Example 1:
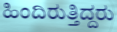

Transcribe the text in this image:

ಹಿಂದಿರುತ್ತಿದ್ದರು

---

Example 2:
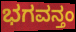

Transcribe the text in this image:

ಭಗವನ್ತಂ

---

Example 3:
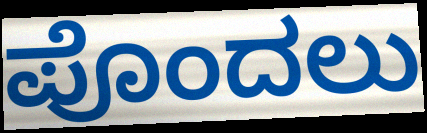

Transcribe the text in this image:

ಪೊಂದಲು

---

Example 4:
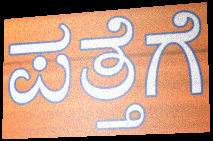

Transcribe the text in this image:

ಪತ್ತೆಗೆ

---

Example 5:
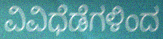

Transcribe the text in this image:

ವಿವಿಧೆಡೆಗಳಿಂದ